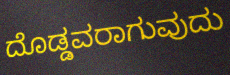
ದೊಡ್ಡವರಾಗುವುದು